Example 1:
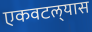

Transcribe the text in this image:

एकवटल्यास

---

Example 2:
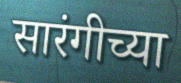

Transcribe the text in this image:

सारंगीच्या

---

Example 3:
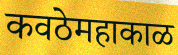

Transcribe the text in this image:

कवठेमहाकाळ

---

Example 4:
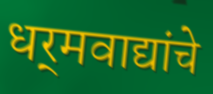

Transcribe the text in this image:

धर्मवाद्यांचे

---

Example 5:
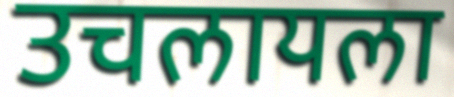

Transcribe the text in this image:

उचलायला